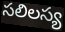
సలిలస్య